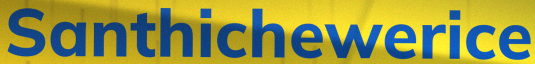
Santhichewerice